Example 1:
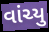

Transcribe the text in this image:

વાંચ્યુ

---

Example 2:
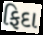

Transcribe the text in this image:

ફિદા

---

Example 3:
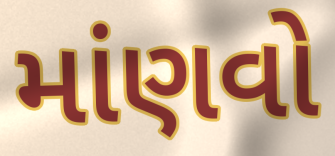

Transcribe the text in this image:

માંણવો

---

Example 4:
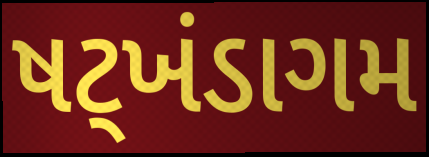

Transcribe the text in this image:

ષટ્ખંડાગમ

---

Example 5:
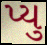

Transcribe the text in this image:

પ્યુ